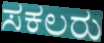
ಸಕಲರು